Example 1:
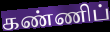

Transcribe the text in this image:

கண்ணிப்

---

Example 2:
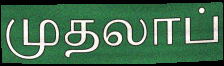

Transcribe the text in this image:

முதலாப்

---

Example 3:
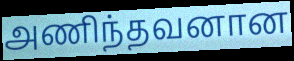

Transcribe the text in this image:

அணிந்தவனான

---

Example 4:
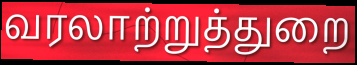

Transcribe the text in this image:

வரலாற்றுத்துறை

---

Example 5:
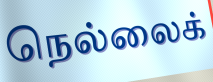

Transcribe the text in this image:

நெல்லைக்